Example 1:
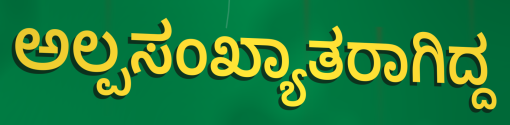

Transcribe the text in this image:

ಅಲ್ಪಸಂಖ್ಯಾತರಾಗಿದ್ದ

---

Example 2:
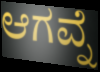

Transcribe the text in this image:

ಆಗವ್ನೆ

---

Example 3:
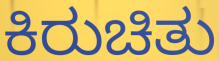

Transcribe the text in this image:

ಕಿರುಚಿತು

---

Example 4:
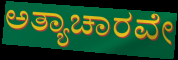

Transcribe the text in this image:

ಅತ್ಯಾಚಾರವೇ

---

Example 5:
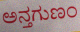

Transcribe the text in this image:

ಅನ್ತಗುಣಂ